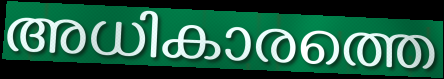
അധികാരത്തെ